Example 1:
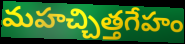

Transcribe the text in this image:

మహచ్చిత్తగేహం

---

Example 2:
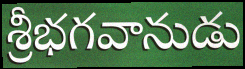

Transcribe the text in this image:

శ్రీభగవానుడు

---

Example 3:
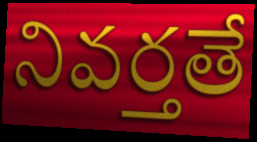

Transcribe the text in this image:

నివర్తతే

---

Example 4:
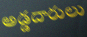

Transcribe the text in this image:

అడ్డదారులు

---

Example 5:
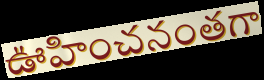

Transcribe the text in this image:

ఊహించనంతగా